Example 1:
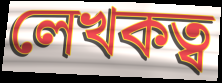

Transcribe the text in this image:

লেখকত্ব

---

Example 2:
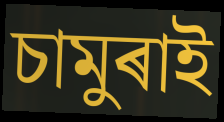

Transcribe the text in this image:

চামুৰাই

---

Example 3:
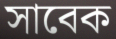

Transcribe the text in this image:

সাবেক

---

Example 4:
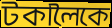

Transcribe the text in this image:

টকালৈকে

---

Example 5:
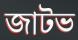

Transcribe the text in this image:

জাটভ